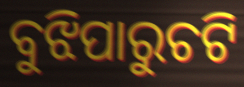
ବୁଝିପାରୁଚଟି